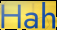
Hah